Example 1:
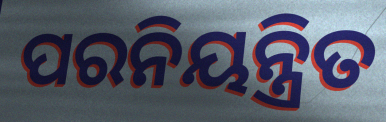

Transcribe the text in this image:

ପରନିୟନ୍ତ୍ରିତ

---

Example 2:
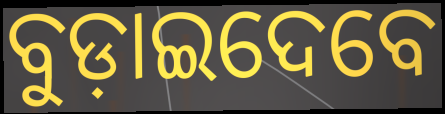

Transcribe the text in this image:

ବୁଡ଼ାଇଦେବେ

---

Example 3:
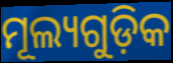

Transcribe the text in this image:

ମୂଲ୍ୟଗୁଡ଼ିକ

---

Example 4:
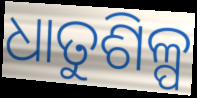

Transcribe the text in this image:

ଧାତୁଶିଳ୍ପ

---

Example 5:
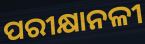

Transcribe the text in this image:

ପରୀକ୍ଷାନଳୀ